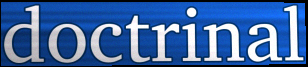
doctrinal